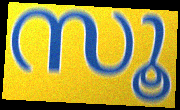
സൂ